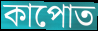
কাপোত